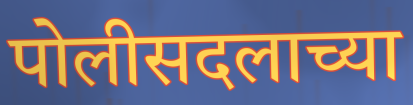
पोलीसदलाच्या